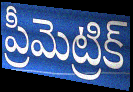
ప్రీమెట్రిక్